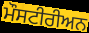
ਮੌਸਟੀਰੀਅਨ